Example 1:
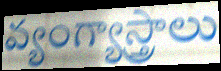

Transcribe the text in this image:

వ్యంగ్యాస్త్రాలు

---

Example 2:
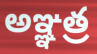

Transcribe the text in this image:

అఞ్ఞత్ర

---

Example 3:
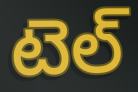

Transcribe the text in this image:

టెల్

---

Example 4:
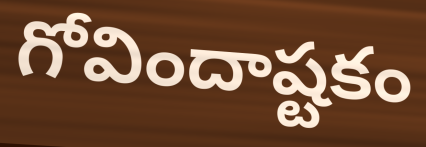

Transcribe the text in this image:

గోవిందాష్టకం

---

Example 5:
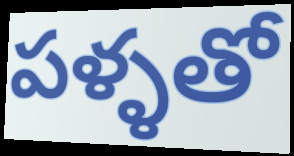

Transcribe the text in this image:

పళ్ళతో